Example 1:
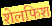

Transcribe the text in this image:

शेलफिश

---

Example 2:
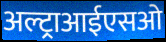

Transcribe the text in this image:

अल्ट्राआईएसओ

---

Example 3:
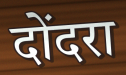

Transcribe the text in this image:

दोंदरा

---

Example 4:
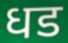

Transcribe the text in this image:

धड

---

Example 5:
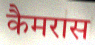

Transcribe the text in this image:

कैमरास